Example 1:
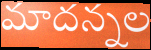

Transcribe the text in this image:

మాదన్నల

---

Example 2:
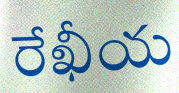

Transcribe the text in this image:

రేఖీయ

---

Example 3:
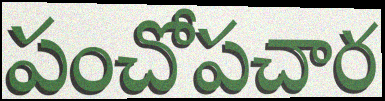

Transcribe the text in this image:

పంచోపచార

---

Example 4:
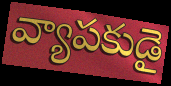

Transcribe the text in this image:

వ్యాపకుడై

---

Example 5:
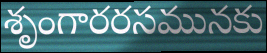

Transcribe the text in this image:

శృంగారరసమునకు